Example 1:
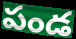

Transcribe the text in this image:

పండ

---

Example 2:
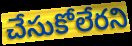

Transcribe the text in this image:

చేసుకోలేరని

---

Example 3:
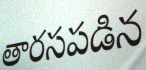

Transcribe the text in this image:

తారసపడిన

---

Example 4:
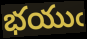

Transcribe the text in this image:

భయుఁ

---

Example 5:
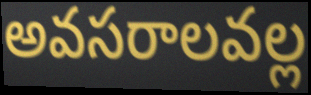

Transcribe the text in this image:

అవసరాలవల్ల